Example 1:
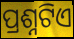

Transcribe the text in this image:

ପ୍ରଶ୍ନଟିଏ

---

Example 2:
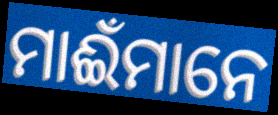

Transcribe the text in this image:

ମାଈଁମାନେ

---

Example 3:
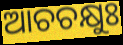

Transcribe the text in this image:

ଆଚଚକ୍ଷୁଃ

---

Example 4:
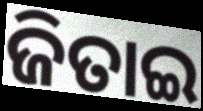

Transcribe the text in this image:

ଜିତାଇ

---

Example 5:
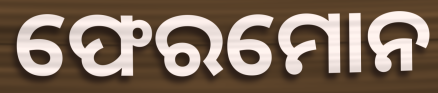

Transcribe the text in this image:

ଫେରମୋନ